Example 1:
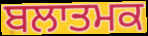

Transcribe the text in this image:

ਬਲਾਤਮਕ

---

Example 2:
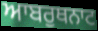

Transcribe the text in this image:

ਆਬਰੁਥਨਾਟ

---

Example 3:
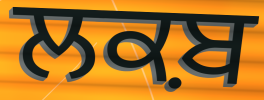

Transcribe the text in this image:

ਲਕ਼ਬ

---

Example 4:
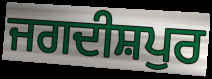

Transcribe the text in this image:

ਜਗਦੀਸ਼ਪੁਰ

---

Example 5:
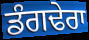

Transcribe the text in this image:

ਡੰਗਢੇਰਾ